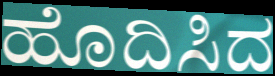
ಹೊದಿಸಿದ